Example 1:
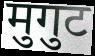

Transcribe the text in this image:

मुगुट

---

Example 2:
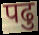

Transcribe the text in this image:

पढु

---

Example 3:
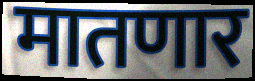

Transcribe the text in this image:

मातणार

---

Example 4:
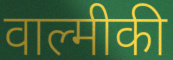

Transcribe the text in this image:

वाल्मीकी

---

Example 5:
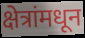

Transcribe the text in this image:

क्षेत्रांमधून